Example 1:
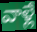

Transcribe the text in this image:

వాళ్లే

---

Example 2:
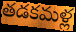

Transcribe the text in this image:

తడకమళ్ల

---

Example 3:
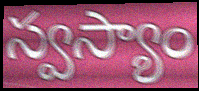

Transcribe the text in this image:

స్వస్యాం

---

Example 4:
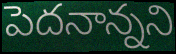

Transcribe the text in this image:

పెదనాన్నని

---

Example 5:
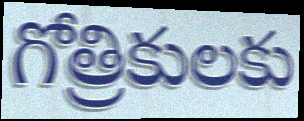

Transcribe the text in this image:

గోత్రికులకు